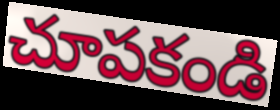
చూపకండి